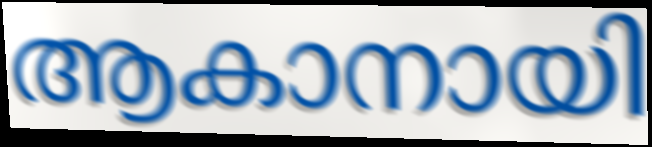
ആകാനായി